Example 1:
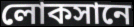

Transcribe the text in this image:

লোকসানে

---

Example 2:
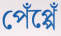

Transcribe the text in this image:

পেঁপ্পেঁ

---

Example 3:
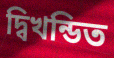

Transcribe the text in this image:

দ্বিখন্ডিত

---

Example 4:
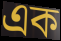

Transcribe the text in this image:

এক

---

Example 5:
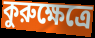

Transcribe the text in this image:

কুরুক্ষেত্রে